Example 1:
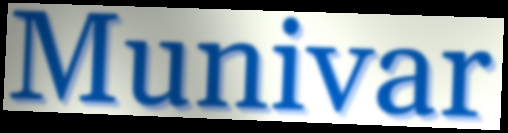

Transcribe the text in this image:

Munivar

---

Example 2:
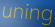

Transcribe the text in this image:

uning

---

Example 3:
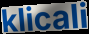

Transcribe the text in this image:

klicali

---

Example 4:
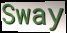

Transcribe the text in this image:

Sway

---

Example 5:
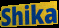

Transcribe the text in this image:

Shika